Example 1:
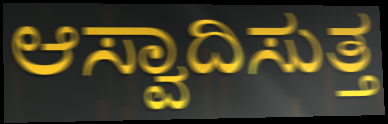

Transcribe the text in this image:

ಆಸ್ವಾದಿಸುತ್ತ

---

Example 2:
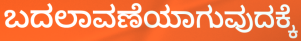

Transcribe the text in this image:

ಬದಲಾವಣೆಯಾಗುವುದಕ್ಕೆ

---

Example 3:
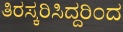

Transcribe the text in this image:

ತಿರಸ್ಕರಿಸಿದ್ದರಿಂದ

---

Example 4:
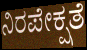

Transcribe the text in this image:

ನಿರಪೇಕ್ಷತೆ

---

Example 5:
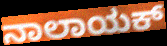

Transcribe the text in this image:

ನಾಲಾಯಕ್